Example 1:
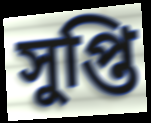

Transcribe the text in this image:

সুপ্তি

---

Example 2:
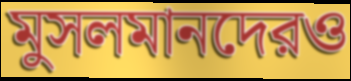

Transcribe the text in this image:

মুসলমানদেরও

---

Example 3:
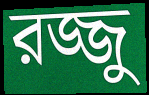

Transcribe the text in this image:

রজ্জু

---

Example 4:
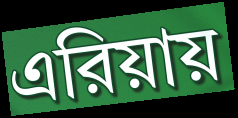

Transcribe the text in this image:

এরিয়ায়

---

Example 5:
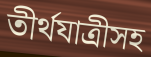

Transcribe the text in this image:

তীর্থযাত্রীসহ